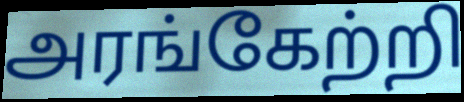
அரங்கேற்றி